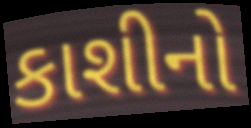
કાશીનો